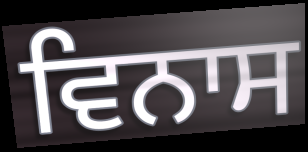
ਵਿਨਾਸ